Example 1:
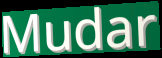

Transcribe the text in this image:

Mudar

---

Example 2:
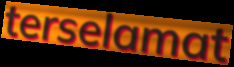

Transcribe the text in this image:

terselamat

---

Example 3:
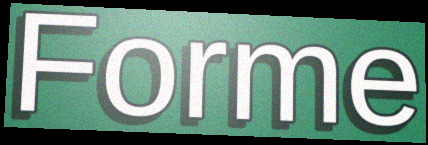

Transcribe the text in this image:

Forme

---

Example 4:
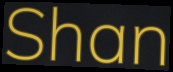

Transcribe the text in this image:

Shan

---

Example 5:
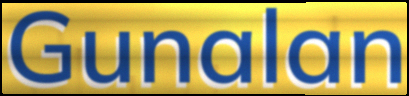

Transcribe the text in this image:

Gunalan